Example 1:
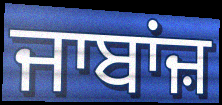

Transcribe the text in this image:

ਜਾਬਾਂਜ਼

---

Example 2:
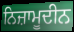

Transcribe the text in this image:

ਨਿਜ਼ਾਮੂਦੀਨ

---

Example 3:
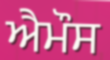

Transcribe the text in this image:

ਐਮੌਸ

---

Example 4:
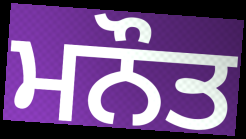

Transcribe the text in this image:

ਮਨੌਤ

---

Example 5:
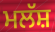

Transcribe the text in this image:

ਮਲੱਸ਼